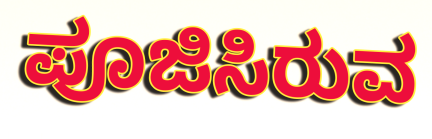
ಪೂಜಿಸಿರುವ